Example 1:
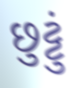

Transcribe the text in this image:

છુટ્ટું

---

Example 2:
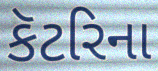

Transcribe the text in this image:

કૅટરિના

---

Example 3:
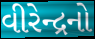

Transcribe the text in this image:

વીરેન્દ્રનો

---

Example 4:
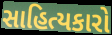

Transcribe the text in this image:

સાહિત્યકારો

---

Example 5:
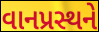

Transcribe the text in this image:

વાનપ્રસ્થને